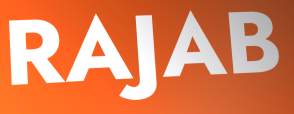
RAJAB